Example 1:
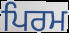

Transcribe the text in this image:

ਪਿਰਮ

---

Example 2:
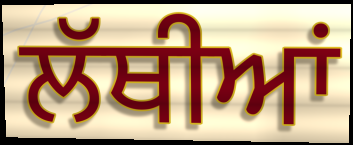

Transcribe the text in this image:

ਲੱਥੀਆਂ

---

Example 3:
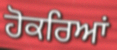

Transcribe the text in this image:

ਹੋਕਰਿਆਂ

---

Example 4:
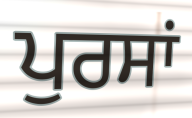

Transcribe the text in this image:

ਪੁਰਸਾਂ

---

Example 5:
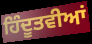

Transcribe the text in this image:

ਹਿੰਦੂਤਵੀਆਂ